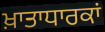
ਖ਼ਾਤਾਧਾਰਕਾਂ